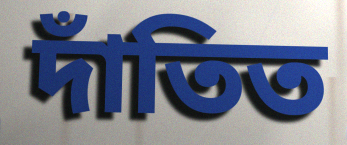
দাঁতিত